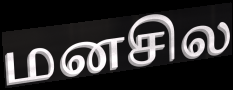
மனசில